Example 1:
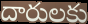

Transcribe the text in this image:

దారులకు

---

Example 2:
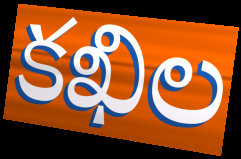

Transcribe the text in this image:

కఖిల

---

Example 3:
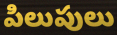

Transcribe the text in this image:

పిలుపులు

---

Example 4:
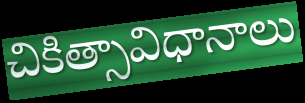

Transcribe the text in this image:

చికిత్సావిధానాలు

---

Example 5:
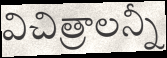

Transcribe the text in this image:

విచిత్రాలన్నీ